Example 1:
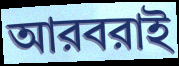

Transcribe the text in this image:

আরবরাই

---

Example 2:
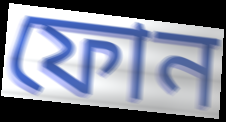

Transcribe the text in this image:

ফোন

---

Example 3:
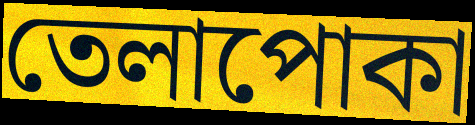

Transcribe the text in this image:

তেলাপোকা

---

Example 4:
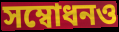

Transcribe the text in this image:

সম্বোধনও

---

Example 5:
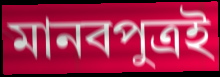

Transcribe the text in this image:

মানবপুত্রই